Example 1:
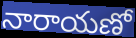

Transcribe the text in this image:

నారాయణో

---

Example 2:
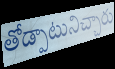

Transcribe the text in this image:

తోడ్పాటునిచ్చారు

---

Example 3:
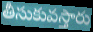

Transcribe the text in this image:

తీసుకువస్తారు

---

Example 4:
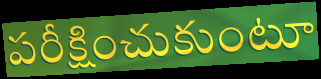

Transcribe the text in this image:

పరీక్షించుకుంటూ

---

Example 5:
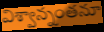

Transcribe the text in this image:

విశ్వాన్నంతనూ